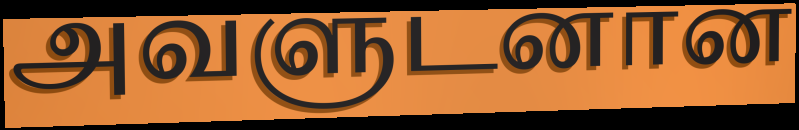
அவளுடனான